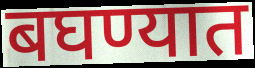
बघण्यात